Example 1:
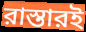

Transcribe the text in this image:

রাস্তারই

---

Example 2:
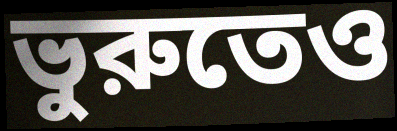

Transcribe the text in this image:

ভুরুতেও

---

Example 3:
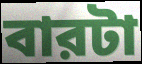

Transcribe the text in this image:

বারটা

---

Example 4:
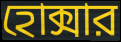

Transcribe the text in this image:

হোক্সার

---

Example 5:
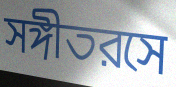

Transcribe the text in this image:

সঙ্গীতরসে